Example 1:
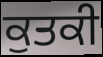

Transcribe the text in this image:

ਕੁਤਕੀ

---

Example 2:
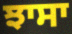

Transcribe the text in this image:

ਝਾਸਾ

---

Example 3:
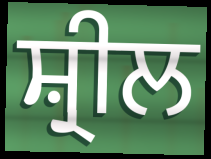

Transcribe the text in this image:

ਸ਼੍ਰੀਲ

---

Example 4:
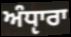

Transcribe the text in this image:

ਅੰਧੵਾਰਾ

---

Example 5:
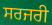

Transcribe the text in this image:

ਸਰਜਰੀ